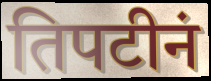
तिपटीनं